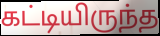
கட்டியிருந்த